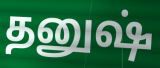
தனுஷ்